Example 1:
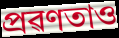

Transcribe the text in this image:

প্ৰৱণতাও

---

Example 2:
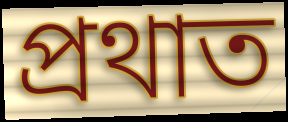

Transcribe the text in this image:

প্ৰথাত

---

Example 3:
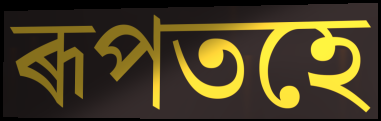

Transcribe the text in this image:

ৰূপতহে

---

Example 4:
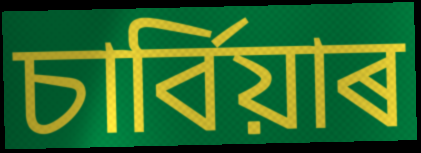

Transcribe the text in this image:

চাৰ্বিয়াৰ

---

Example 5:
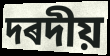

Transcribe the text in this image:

দৰদীয়